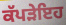
ਕੱਪੜੇਇਹ